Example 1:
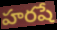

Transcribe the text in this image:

హరషే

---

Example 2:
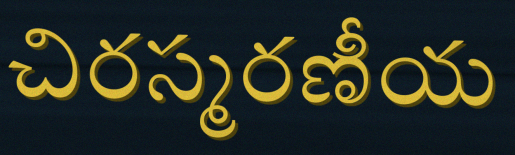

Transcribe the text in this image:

చిరస్మరణీయ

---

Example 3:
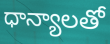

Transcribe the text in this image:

ధాన్యాలతో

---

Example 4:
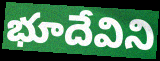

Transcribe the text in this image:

భూదేవిని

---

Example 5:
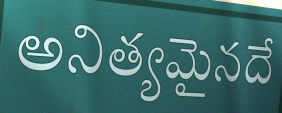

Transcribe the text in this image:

అనిత్యమైనదే